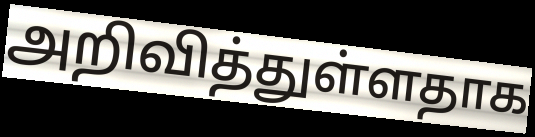
அறிவித்துள்ளதாக